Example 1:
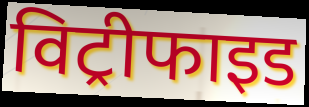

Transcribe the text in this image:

विट्रीफाइड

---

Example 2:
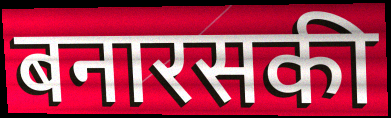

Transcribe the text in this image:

बनारसकी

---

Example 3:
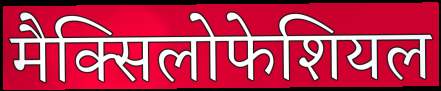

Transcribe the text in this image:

मैक्सिलोफेशियल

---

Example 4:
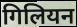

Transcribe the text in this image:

गिलियन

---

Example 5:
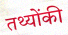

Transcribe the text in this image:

तथ्योंकी